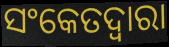
ସଂକେତଦ୍ୱାରା